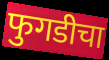
फुगडीचा